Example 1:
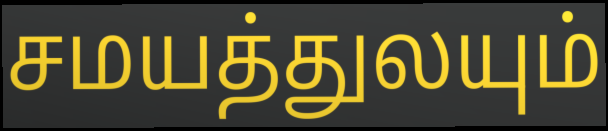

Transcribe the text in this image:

சமயத்துலயும்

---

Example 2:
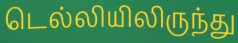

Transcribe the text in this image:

டெல்லியிலிருந்து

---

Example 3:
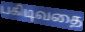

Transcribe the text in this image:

பகிடிவதை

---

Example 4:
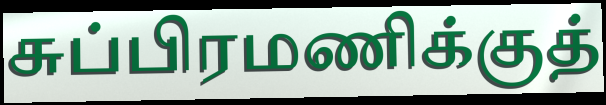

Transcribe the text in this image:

சுப்பிரமணிக்குத்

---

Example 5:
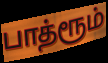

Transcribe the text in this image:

பாத்ரூம்